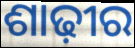
ଶାଢ଼ୀର